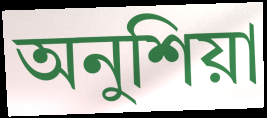
অনুশিয়া